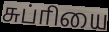
சுப்ரியை